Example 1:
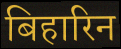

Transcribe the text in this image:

बिहारिन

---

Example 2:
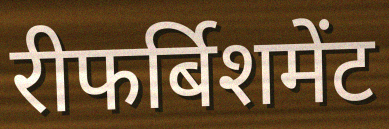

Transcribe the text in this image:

रीफर्बिशमेंट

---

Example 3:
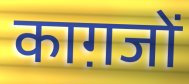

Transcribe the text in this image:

काग़जों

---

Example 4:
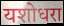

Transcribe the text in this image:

यशोधरा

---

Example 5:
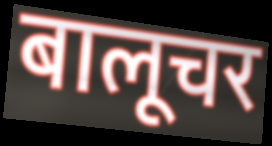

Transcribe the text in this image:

बालूचर